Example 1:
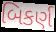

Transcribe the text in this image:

બિકર્ણ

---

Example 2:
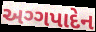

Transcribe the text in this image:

અગ્ગપાદેન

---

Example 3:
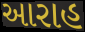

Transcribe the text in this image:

આરાહ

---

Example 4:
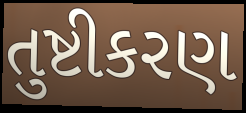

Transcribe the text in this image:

તુષ્ટીકરણ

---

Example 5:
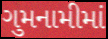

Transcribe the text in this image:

ગુમનામીમાં